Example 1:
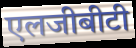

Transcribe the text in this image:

एलजीबीटी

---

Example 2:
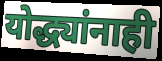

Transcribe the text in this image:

योद्ध्यांनाही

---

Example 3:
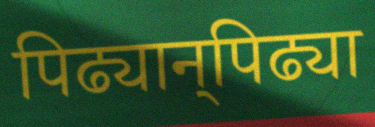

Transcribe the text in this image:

पिढ्यान्‌पिढ्या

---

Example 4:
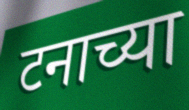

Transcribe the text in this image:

टनाच्या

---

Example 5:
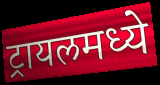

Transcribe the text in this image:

ट्रायलमध्ये